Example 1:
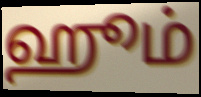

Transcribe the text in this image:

ஹூம்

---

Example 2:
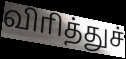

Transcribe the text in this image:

விரித்துச்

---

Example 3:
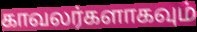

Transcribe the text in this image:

காவலர்களாகவும்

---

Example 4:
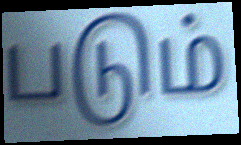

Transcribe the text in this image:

படும்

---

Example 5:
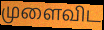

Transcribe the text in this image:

முளைவிட